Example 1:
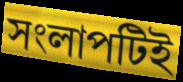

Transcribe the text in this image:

সংলাপটিই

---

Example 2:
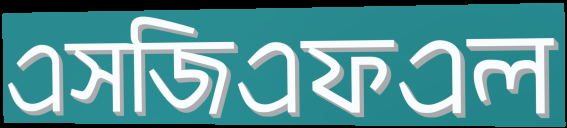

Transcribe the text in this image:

এসজিএফএল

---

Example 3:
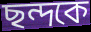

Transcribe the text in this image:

ছন্দকে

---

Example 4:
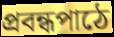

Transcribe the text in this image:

প্রবন্ধপাঠে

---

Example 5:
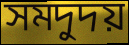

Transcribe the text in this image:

সমদুদয়